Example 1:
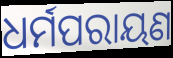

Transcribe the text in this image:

ଧର୍ମପରାୟଣ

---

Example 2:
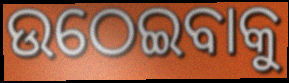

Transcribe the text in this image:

ଉଠେଇବାକୁ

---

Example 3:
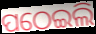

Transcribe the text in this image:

ପଠେଇଲି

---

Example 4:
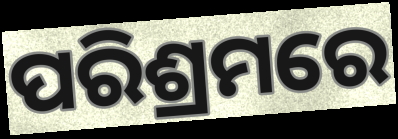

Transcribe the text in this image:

ପରିଶ୍ରମରେ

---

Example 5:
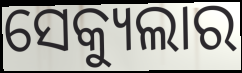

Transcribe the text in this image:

ସେକ୍ୟୁଲାର